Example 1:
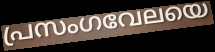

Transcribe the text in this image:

പ്രസംഗവേലയെ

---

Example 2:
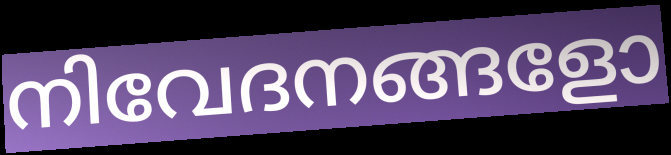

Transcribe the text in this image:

നിവേദനങ്ങളോ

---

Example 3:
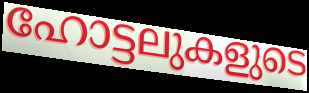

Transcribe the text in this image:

ഹോട്ടലുകളുടെ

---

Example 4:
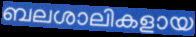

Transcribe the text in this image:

ബലശാലികളായ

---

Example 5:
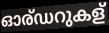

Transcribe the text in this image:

ഓര്ഡറുകള്